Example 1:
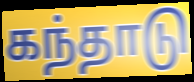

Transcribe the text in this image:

கந்தாடு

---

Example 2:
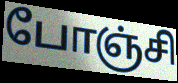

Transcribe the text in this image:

போஞ்சி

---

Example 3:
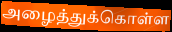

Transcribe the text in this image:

அழைத்துக்கொள்ள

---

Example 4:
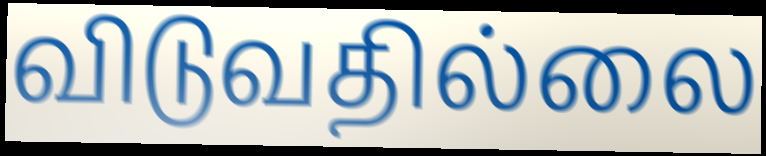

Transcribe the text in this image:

விடுவதில்லை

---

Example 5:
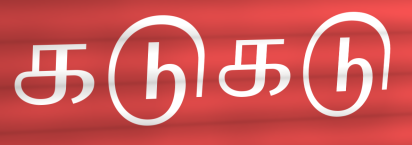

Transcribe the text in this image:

கடுகடு